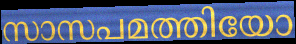
സാസപമത്തിയോ